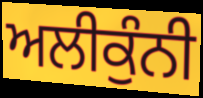
ਅਲੀਕੁੰਨੀ